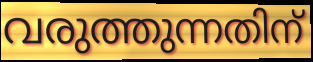
വരുത്തുന്നതിന്